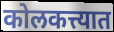
कोलकत्त्यात